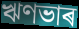
ঋণভাৰ